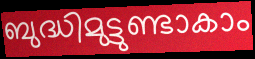
ബുദ്ധിമുട്ടുണ്ടാകാം